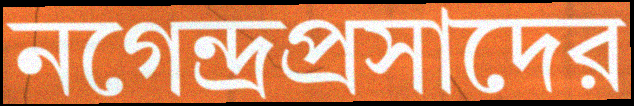
নগেন্দ্রপ্রসাদের